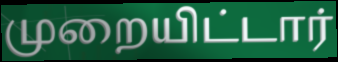
முறையிட்டார்